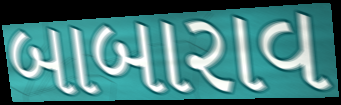
બાબારાવ